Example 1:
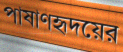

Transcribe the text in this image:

পাষাণহৃদয়ের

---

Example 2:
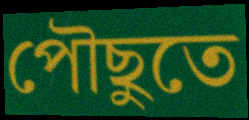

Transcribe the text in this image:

পৌছুতে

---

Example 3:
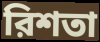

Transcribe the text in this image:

রিশতা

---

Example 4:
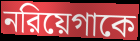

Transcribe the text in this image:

নরিয়েগাকে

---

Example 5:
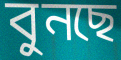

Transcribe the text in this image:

বুনছে